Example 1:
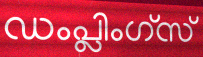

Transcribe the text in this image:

ഡംപ്ലിംഗ്സ്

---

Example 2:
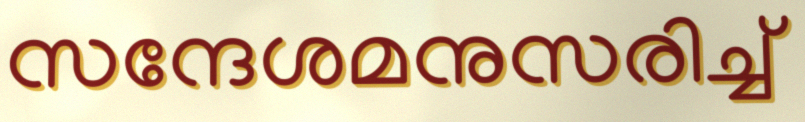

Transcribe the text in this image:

സന്ദേശമനുസരിച്ച്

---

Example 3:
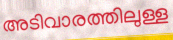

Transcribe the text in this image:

അടിവാരത്തിലുള്ള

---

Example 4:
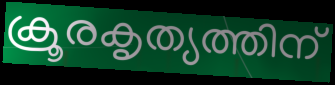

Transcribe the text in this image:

ക്രൂരകൃത്യത്തിന്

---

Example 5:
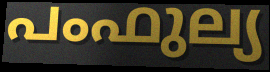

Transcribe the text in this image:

പംഫുല്യ